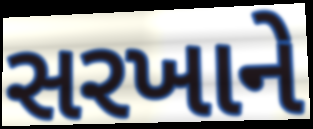
સરખાને